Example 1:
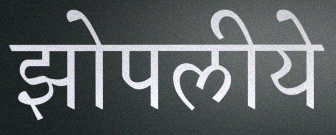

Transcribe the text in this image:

झोपलीये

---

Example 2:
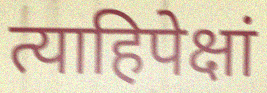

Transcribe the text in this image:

त्याहिपेक्षां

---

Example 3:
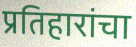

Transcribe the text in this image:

प्रतिहारांचा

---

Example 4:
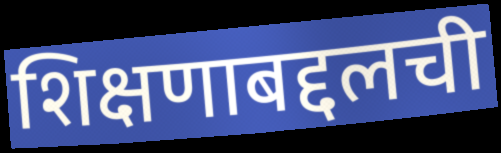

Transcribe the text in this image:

शिक्षणाबद्दलची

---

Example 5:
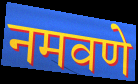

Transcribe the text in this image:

नमवणे